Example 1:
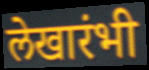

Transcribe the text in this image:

लेखारंभी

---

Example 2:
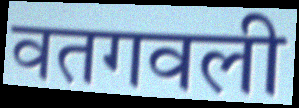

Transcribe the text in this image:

वतगवली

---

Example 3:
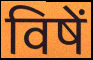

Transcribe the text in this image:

विषें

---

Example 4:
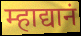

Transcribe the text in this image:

म्हाद्यानं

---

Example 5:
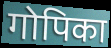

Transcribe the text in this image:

गोपिका